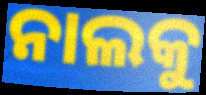
ନାଲକୁ